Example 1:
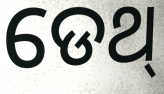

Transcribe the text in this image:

ଡେଥ୍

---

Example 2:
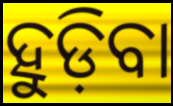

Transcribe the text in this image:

ହୁଡ଼ିବା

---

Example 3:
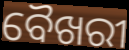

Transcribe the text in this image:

ବୈଖରୀ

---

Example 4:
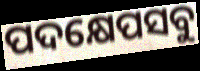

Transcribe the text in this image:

ପଦକ୍ଷେପସବୁ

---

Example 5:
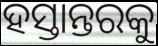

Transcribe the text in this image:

ହସ୍ତାନ୍ତରକୁ